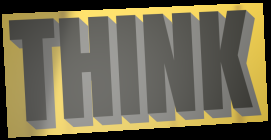
THINK